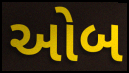
ઓબ